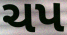
ચપ